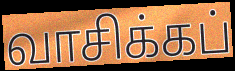
வாசிக்கப்